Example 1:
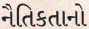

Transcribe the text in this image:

નૈતિકતાનો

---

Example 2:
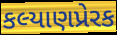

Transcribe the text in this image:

કલ્યાણપ્રેરક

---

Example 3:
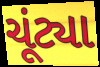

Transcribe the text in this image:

ચૂંટ્યા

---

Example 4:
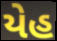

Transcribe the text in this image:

યેહ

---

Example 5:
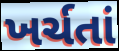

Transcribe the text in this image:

ખર્ચતાં